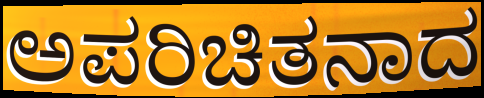
ಅಪರಿಚಿತನಾದ